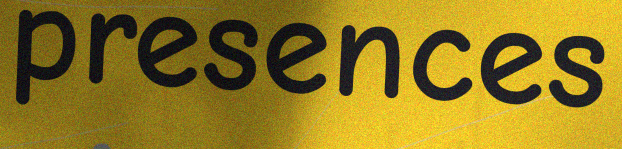
presences